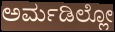
ಅರ್ಮಡಿಲ್ಲೋ